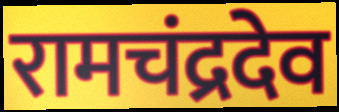
रामचंद्रदेव